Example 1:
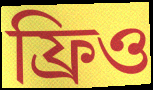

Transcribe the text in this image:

ফ্রিও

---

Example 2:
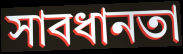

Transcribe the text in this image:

সাবধানতা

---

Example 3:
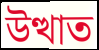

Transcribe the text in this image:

উত্থাত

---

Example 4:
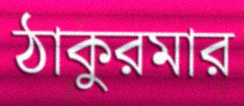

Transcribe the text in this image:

ঠাকুরমার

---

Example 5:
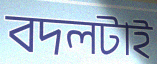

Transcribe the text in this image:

বদলটাই